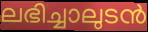
ലഭിച്ചാലുടൻ